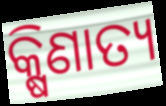
କ୍ଷିଣାତ୍ୟ